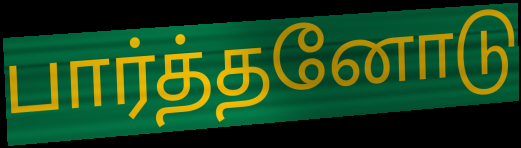
பார்த்தனோடு